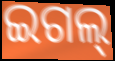
ଇଗଲ୍